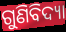
ଗୁଣିବିଦ୍ୟା